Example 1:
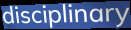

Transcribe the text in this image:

disciplinary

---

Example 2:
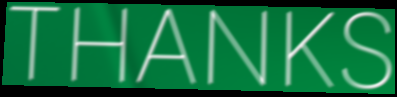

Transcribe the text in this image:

THANKS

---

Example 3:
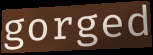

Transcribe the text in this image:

gorged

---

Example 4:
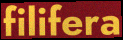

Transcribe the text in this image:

filifera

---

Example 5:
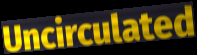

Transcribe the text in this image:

Uncirculated